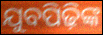
ଯୁବପିଢ଼ିଙ୍କ